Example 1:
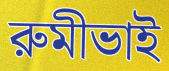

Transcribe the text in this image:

রুমীভাই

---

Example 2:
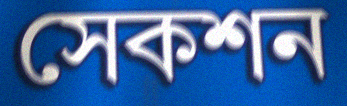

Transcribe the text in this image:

সেকশন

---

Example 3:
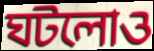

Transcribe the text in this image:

ঘটলোও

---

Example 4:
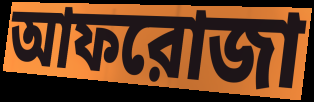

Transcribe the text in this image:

আফরোজা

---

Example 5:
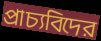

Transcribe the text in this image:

প্রাচ্যবিদের